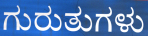
ಗುರುತುಗಳು